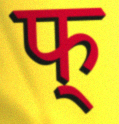
फ्